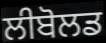
ਲੀਬੋਲਡ